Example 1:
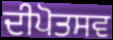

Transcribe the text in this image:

ਦੀਪੋਤਸਵ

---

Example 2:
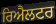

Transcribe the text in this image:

ਰਿਐਲਟਰ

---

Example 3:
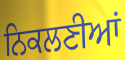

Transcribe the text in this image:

ਨਿਕਲਣੀਆਂ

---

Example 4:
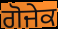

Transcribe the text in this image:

ਗੋਜੇਕ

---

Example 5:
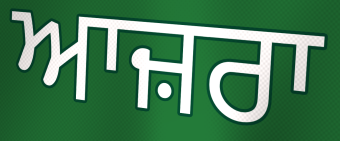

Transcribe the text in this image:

ਆਜ਼ਰਾ